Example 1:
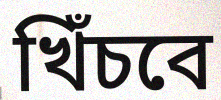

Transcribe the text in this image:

খিঁচবে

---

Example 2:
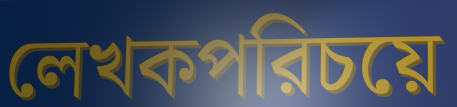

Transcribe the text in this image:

লেখকপরিচয়ে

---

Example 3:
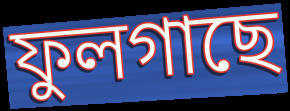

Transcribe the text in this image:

ফুলগাছে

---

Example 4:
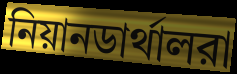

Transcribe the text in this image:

নিয়ানডার্থালরা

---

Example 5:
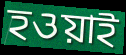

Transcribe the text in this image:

হওয়াই